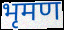
भृमण